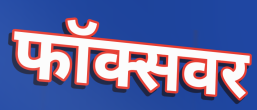
फॉक्सवर